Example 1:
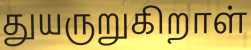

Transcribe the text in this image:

துயருறுகிறாள்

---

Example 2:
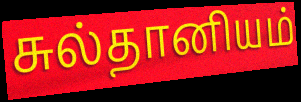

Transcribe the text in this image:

சுல்தானியம்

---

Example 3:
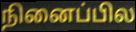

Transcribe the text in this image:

நினைப்பில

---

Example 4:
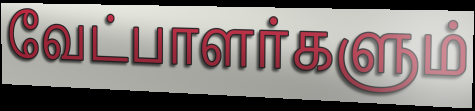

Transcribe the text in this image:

வேட்பாளர்களும்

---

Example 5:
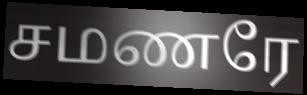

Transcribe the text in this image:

சமணரே